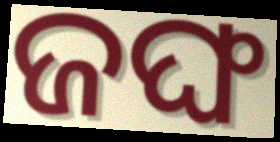
ଜଙ୍ଘ